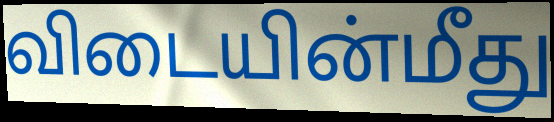
விடையின்மீது